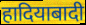
हादियाबादी